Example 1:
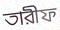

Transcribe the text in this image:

তারীফ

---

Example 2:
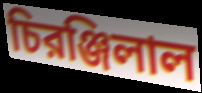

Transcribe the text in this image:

চিরঞ্জিলাল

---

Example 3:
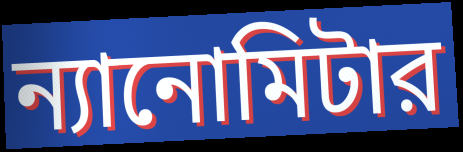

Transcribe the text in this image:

ন্যানোমিটার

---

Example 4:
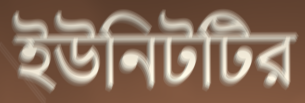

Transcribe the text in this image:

ইউনিটটির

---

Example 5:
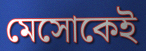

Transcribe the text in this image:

মেসোকেই